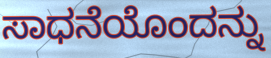
ಸಾಧನೆಯೊಂದನ್ನು